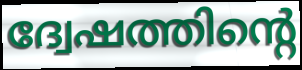
ദ്വേഷത്തിന്റെ